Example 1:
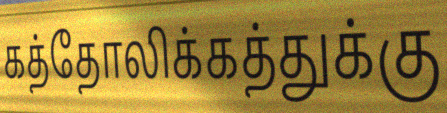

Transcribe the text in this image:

கத்தோலிக்கத்துக்கு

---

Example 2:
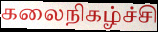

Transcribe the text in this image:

கலைநிகழ்ச்சி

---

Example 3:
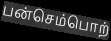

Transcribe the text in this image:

பன்செம்பொற்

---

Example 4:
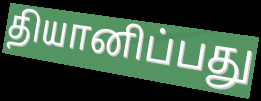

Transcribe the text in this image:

தியானிப்பது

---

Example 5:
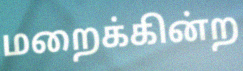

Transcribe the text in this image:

மறைக்கின்ற